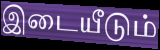
இடையீடும்